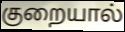
குறையால்